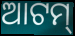
ଆଟମ୍